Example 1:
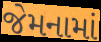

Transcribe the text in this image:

જેમનામાં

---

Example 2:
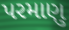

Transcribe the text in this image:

પરમાણુ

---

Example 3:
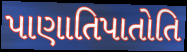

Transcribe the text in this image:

પાણાતિપાતોતિ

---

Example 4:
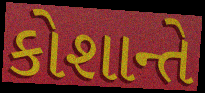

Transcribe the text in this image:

કોશાન્તે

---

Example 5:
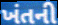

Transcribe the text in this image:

ખંતની